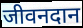
जीवनदान